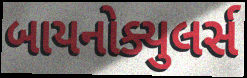
બાયનોક્યુલર્સ